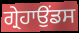
ਗ੍ਰੇਹਾਉਂਡਸ